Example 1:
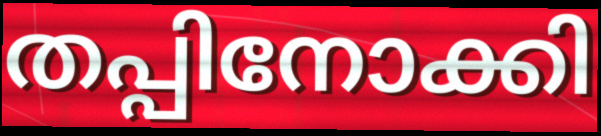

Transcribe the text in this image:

തപ്പിനോക്കി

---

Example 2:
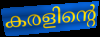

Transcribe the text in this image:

കരളിന്റെ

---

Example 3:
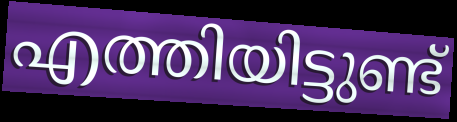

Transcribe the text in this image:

എത്തിയിട്ടുണ്ട്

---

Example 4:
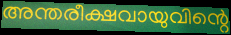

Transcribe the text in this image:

അന്തരീക്ഷവായുവിന്റെ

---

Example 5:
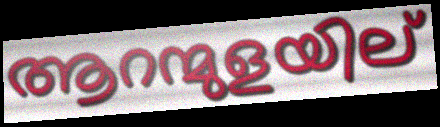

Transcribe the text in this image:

ആറന്മുളയില്